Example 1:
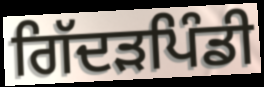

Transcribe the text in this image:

ਗਿੱਦੜਪਿੰਡੀ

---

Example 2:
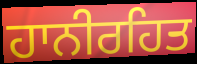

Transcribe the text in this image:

ਹਾਨੀਰਹਿਤ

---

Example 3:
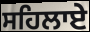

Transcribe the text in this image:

ਸਹਿਲਾਏ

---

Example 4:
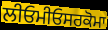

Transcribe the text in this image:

ਲੀਓਮੀਓਸਰਕੋਮਾ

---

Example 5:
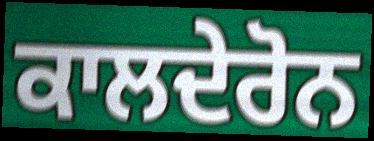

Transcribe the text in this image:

ਕਾਲਦੇਰੋਨ